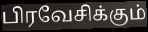
பிரவேசிக்கும்